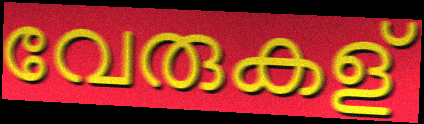
വേരുകള്